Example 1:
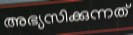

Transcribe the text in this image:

അഭ്യസിക്കുന്നത്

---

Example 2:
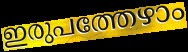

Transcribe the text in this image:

ഇരുപത്തേഴാം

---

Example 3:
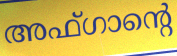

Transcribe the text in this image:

അഫ്ഗാന്റെ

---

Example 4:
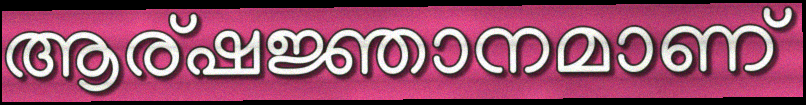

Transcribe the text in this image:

ആര്ഷജ്ഞാനമാണ്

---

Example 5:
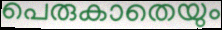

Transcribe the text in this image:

പെരുകാതെയും